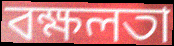
বক্ষলতা